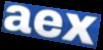
aex